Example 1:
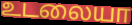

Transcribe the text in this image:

உடலையா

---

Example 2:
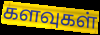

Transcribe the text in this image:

களவுகள்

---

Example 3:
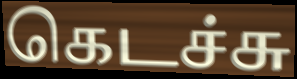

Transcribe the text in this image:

கெடச்சு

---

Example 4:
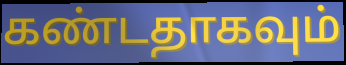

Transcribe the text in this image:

கண்டதாகவும்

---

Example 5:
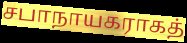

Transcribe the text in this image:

சபாநாயகராகத்